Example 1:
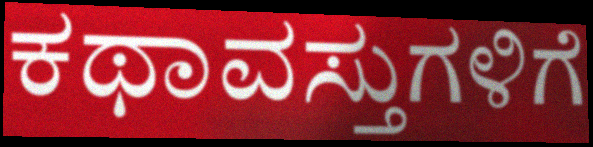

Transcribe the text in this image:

ಕಥಾವಸ್ತುಗಳಿಗೆ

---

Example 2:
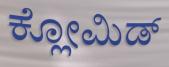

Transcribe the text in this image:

ಕ್ಲೋಮಿಡ್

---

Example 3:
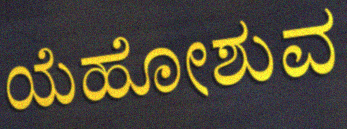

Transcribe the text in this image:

ಯೆಹೋಶುವ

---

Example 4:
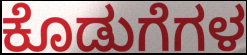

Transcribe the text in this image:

ಕೊಡುಗೆಗಳ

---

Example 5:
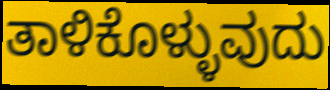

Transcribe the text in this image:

ತಾಳಿಕೊಳ್ಳುವುದು